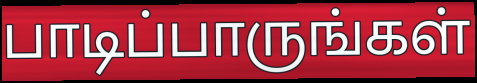
பாடிப்பாருங்கள்